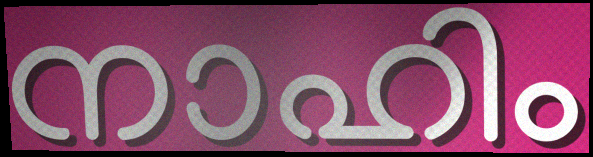
നാഹിം